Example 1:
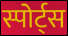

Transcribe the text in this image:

स्पोर्ट्स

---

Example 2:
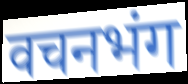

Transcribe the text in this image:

वचनभंग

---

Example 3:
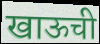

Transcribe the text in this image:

खाऊची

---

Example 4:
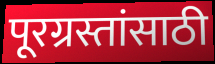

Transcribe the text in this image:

पूरग्रस्तांसाठी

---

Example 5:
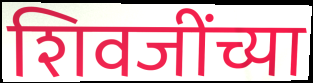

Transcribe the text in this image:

शिवजींच्या